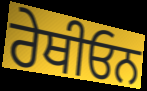
ਰੇਥੀਓਨ